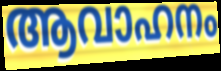
ആവാഹനം